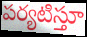
పర్యటిస్తూ